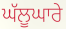
ਘੱਲੂਘਾਰੇ